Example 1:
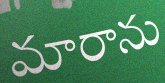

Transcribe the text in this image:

మారాను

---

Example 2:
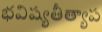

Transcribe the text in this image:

భవిష్యతీత్యాప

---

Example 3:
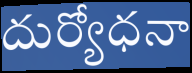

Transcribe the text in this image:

దుర్యోధనా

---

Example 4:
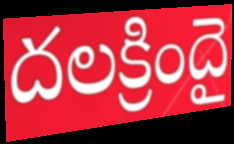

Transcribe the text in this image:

దలక్రిందై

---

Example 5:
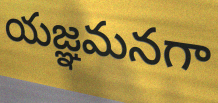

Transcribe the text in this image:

యజ్ఞమనగా